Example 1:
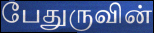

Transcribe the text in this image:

பேதுருவின்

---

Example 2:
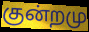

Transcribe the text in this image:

குன்றமு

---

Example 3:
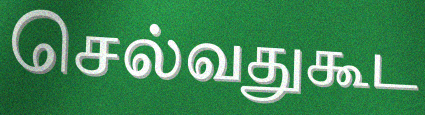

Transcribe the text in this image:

செல்வதுகூட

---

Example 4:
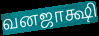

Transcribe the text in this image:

வனஜாக்ஷி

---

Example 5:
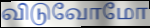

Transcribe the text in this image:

விடுவோமோ